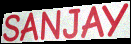
SANJAY